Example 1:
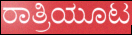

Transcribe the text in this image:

ರಾತ್ರಿಯೂಟ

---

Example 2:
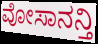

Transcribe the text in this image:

ವೋಸಾನನ್ತಿ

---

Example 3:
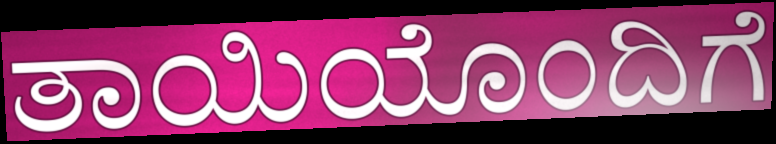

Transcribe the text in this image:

ತಾಯಿಯೊಂದಿಗೆ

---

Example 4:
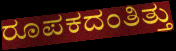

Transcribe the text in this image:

ರೂಪಕದಂತಿತ್ತು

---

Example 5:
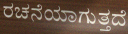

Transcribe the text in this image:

ರಚನೆಯಾಗುತ್ತದೆ